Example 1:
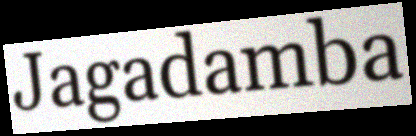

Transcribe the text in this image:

Jagadamba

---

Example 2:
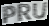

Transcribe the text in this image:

PRU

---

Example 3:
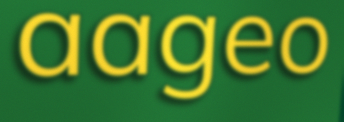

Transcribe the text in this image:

aageo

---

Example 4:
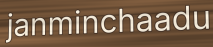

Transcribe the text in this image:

janminchaadu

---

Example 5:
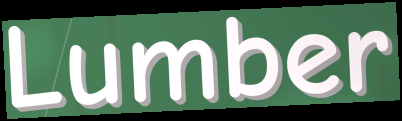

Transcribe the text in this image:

Lumber